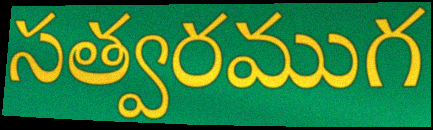
సత్వరముగ